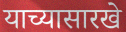
याच्यासारखे